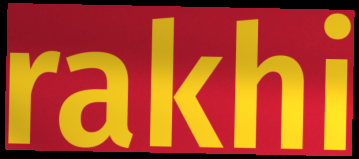
rakhi